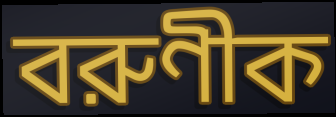
বৰুণীক